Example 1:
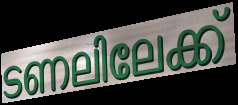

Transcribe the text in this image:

ടണലിലേക്ക്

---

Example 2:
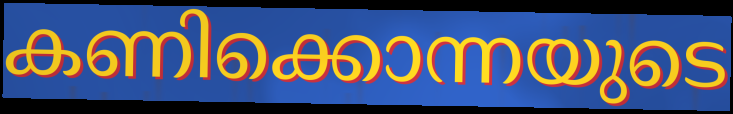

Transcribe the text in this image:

കണിക്കൊന്നയുടെ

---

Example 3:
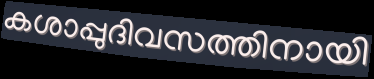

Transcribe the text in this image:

കശാപ്പുദിവസത്തിനായി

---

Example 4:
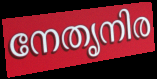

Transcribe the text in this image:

നേതൃനിര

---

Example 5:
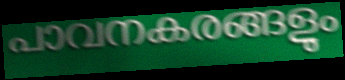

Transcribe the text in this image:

പാവനകരങ്ങളും